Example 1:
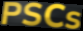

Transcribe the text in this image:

PSCs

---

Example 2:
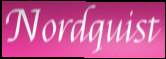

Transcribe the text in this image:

Nordquist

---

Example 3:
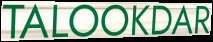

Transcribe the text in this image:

TALOOKDAR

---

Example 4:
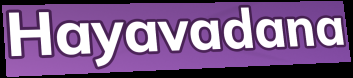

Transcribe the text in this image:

Hayavadana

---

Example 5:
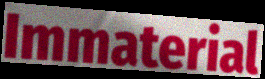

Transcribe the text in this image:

Immaterial